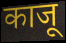
काजू